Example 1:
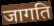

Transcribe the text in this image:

जागति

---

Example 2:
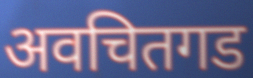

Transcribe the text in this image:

अवचितगड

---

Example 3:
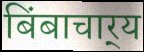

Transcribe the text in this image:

बिंबाचार्य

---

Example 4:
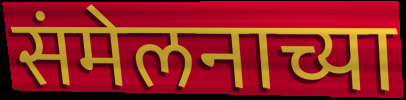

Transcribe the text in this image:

संमेलनाच्या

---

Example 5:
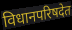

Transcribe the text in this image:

विधानपरिषदेत